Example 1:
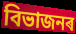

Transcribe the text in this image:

বিভাজনৰ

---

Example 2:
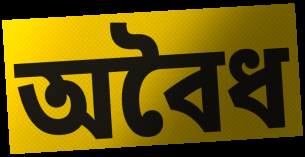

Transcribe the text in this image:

অবৈধ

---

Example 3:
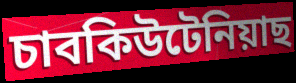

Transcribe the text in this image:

চাবকিউটেনিয়াছ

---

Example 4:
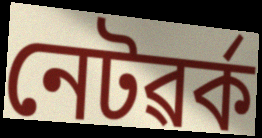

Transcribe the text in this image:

নেটৱৰ্ক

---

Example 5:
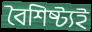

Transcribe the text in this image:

বৈশিষ্ট্যই